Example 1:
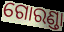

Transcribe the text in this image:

ଗୋରଣ୍ଡା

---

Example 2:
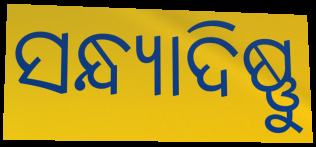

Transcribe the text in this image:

ସନ୍ଧ୍ୟାଦିଷ୍ଣୁ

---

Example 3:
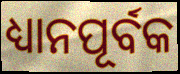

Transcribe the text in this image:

ଧ୍ୟାନପୂର୍ବକ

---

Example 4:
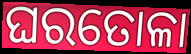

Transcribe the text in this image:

ଘରତୋଳା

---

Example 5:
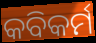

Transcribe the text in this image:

କବିକର୍ମ